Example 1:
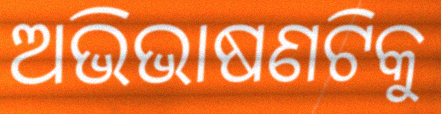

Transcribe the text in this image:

ଅଭିଭାଷଣଟିକୁ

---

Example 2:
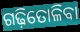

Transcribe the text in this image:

ଗଢ଼ିତୋଳିବା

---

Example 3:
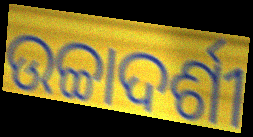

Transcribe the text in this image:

ଉଚ୍ଚାଦର୍ଶୀ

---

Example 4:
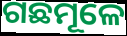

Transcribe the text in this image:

ଗଛମୂଳେ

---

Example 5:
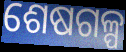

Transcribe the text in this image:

ଶେଷଗଳ୍ପ